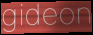
gideon